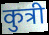
कुत्री